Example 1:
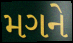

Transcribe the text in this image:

મગને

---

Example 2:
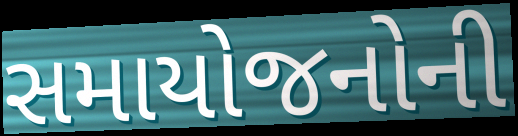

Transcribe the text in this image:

સમાયોજનોની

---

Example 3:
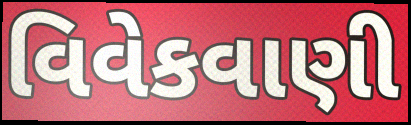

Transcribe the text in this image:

વિવેકવાણી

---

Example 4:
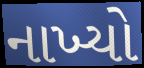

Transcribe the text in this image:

નાખ્યો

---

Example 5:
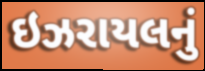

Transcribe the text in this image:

ઇઝરાયલનું